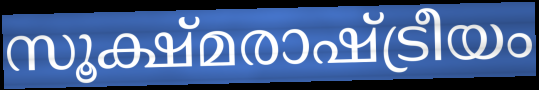
സൂക്ഷ്മരാഷ്ട്രീയം